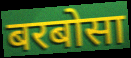
बरबोसा